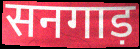
सनगाड़